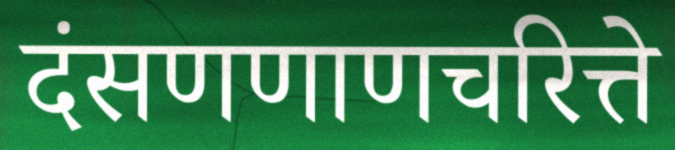
दंसणणाणचरित्ते